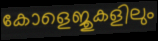
കോളെജുകളിലും